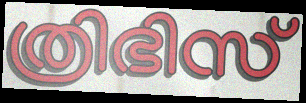
ത്രിഭിസ്